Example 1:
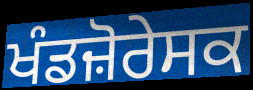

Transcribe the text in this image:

ਖੰਡਜ਼ੋਰੇਸਕ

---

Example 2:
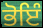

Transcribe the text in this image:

ਭੋਇੰ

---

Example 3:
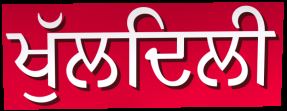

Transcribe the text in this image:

ਖੁੱਲਦਿਲੀ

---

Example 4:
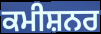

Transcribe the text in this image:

ਕਮੀਸ਼ਨਰ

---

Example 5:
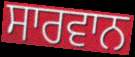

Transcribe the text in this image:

ਸਾਰਵਾਨ